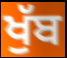
ਖੁੱਬ